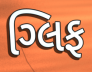
ગ્લિફ